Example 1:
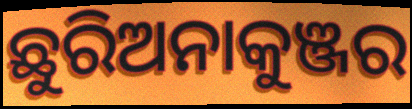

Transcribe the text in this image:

ଛୁରିଅନାକୁଞ୍ଜର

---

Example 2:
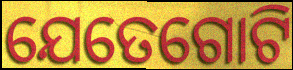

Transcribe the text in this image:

ଯେତେଗୋଟି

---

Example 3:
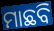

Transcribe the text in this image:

ମାଛବି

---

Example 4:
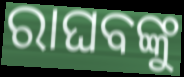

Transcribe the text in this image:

ରାଘବଙ୍କୁ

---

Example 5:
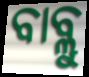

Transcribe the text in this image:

ବାବ୍ଲୁ